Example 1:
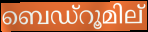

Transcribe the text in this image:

ബെഡ്റൂമില്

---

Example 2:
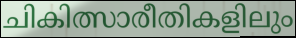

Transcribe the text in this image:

ചികിത്സാരീതികളിലും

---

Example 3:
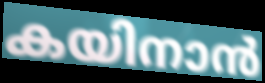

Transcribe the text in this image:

കയിനാൻ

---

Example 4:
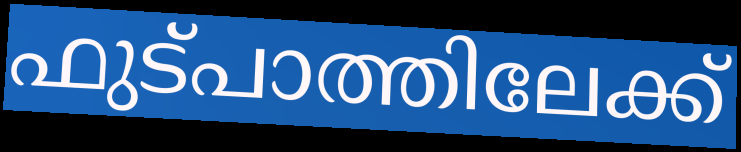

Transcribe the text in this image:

ഫുട്പാത്തിലേക്ക്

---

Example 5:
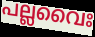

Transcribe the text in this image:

പല്ലവൈഃ